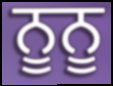
ਨੂਨੂ